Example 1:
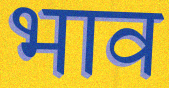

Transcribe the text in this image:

भाव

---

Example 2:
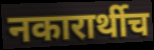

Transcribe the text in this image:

नकारार्थीच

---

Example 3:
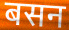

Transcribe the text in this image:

बसन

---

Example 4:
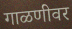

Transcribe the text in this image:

गाळणीवर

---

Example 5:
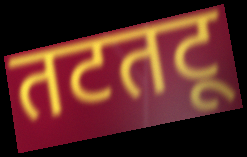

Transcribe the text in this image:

तटतटू